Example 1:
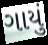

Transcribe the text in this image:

ગાયું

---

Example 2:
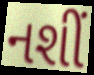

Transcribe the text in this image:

નશીં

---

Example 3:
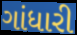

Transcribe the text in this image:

ગાંધારી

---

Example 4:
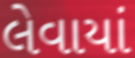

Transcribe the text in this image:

લેવાયાં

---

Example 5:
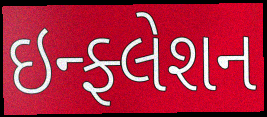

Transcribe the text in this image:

ઇન્ફ્લેશન